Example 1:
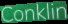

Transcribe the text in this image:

Conklin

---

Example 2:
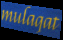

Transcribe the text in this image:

mulaqat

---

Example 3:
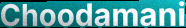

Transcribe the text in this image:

Choodamani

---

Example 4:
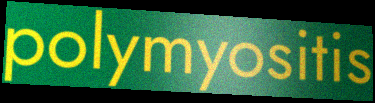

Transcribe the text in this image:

polymyositis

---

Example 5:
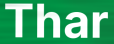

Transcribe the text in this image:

Thar